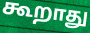
கூறாது